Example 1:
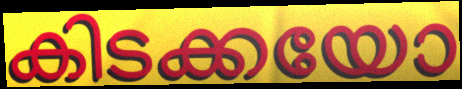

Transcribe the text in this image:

കിടക്കയോ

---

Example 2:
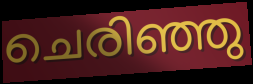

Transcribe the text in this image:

ചെരിഞ്ഞു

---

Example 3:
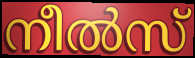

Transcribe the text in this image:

നീൽസ്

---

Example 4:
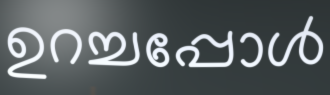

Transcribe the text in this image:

ഉറച്ചപ്പോൾ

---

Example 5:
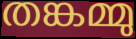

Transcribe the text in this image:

തങ്കമ്മു